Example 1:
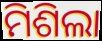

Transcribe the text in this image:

ମିଶିଲା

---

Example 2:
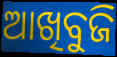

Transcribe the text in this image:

ଆଖିବୁଜି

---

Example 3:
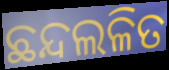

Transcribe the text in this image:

ଛନ୍ଦଲଳିତ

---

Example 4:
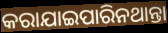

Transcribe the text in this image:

କରାଯାଇପାରିନଥାନ୍ତା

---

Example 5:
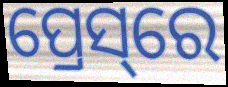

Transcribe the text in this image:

ପ୍ରେସ୍‌ରେ